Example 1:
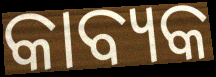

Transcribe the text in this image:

କାବ୍ୟକ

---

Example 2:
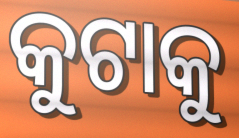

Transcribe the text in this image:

କୁଟାକୁ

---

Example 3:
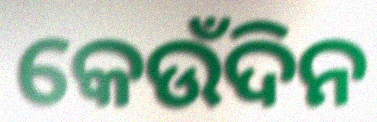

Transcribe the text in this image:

କେଉଁଦିନ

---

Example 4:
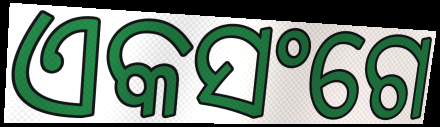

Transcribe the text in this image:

ଏକସଂଗେ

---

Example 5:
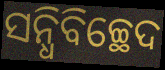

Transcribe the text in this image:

ସନ୍ଧିବିଚ୍ଛେଦ